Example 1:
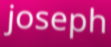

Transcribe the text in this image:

joseph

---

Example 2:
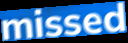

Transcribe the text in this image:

missed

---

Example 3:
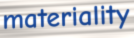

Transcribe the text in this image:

materiality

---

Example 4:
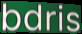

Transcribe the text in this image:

bdris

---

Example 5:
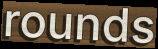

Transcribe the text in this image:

rounds